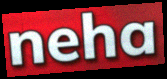
neha